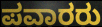
ಪವಾರರು